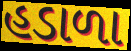
હડાળા